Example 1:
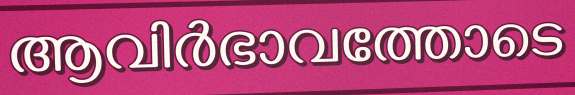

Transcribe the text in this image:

ആവിർഭാവത്തോടെ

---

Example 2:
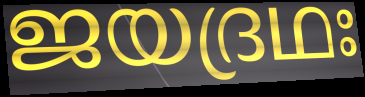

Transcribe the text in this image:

ജയദ്രഥഃ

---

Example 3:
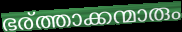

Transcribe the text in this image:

ഭര്ത്താക്കന്മാരും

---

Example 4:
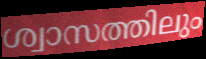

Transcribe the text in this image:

ശ്വാസത്തിലും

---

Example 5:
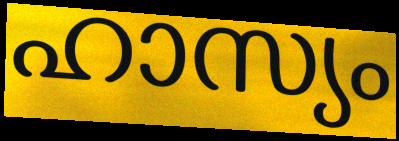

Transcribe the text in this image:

ഹാസ്യം